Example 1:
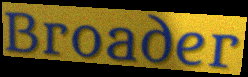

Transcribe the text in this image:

Broader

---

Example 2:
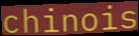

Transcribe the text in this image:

chinois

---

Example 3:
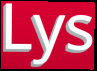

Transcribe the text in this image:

Lys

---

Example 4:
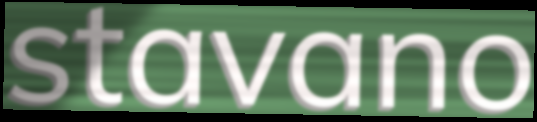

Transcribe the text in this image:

stavano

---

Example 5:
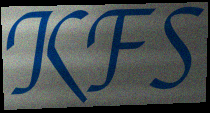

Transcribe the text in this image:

KFS